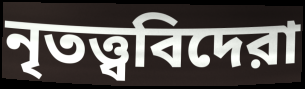
নৃতত্ত্ববিদেরা